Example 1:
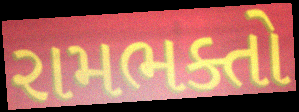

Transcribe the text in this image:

રામભક્તો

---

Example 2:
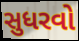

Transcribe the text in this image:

સુધરવો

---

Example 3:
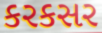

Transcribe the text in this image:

કરકસર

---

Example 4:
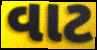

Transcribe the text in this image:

વાટ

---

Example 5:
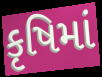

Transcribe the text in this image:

કૃષિમાં